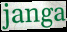
janga